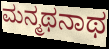
ಮನ್ಮಥನಾಥ